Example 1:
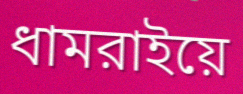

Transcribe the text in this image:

ধামরাইয়ে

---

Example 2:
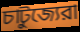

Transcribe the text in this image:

চাটুজ্যেরা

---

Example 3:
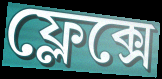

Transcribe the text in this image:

ফ্লেক্সে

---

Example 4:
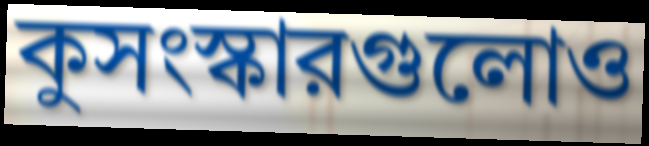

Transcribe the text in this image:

কুসংস্কারগুলোও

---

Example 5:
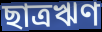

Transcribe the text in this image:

ছাত্রঋণ